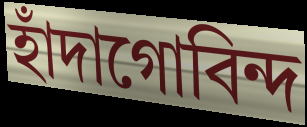
হাঁদাগোবিন্দ